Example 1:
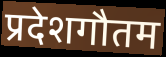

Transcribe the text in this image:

प्रदेशगौतम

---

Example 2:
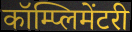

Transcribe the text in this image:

कॉम्प्लिमेंटरी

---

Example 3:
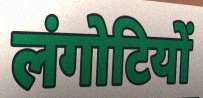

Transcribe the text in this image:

लंगोटियों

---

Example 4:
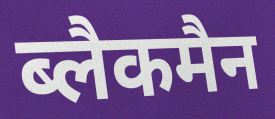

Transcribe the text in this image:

ब्लैकमैन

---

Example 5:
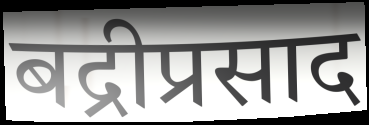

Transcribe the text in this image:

बद्रीप्रसाद